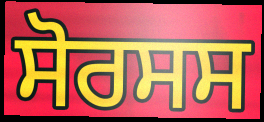
ਸੋਰਸਸ